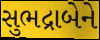
સુભદ્રાબેને